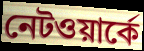
নেটওয়ার্কে